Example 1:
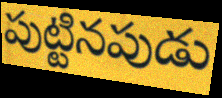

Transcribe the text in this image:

పుట్టినపుడు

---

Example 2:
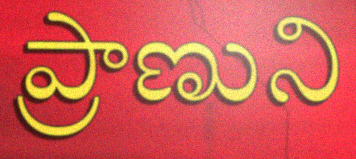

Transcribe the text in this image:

ప్రాణుని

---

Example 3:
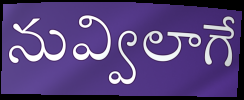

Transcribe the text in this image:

నువ్విలాగే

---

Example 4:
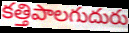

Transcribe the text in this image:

కత్తిపాలగుదురు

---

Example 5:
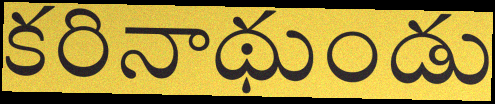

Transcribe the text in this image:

కరినాథుండు